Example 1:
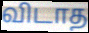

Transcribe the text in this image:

விடாத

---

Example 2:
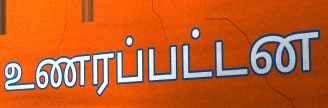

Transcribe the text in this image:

உணரப்பட்டன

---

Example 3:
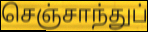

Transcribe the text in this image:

செஞ்சாந்துப்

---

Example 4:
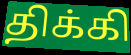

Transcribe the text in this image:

திக்கி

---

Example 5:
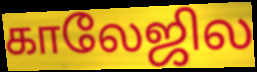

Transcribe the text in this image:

காலேஜில